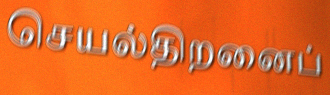
செயல்திறனைப்